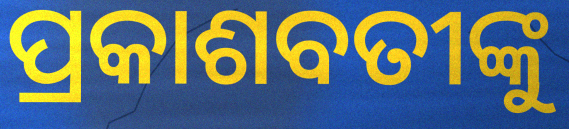
ପ୍ରକାଶବତୀଙ୍କୁ